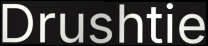
Drushtie